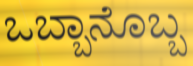
ಒಬ್ಬಾನೊಬ್ಬ